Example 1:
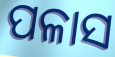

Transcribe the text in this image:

ପଳାସ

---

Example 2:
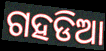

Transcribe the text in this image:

ଗହଡିଆ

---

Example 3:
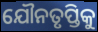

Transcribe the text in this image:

ଯୌନତୃପ୍ତିକୁ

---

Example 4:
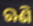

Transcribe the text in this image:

ଋଣି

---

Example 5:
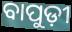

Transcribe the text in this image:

ବାପୁଡ଼ୀ